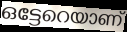
ഒട്ടേറെയാണ്